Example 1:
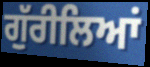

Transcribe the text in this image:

ਗੁੱਰੀਲਿਆਂ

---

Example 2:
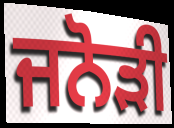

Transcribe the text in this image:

ਜਨੋੜੀ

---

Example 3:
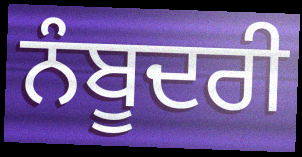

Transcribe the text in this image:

ਨੰਬੂਦਰੀ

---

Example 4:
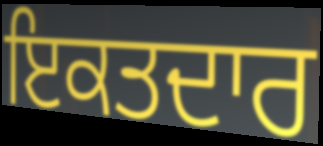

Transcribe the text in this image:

ਇਕਤਦਾਰ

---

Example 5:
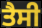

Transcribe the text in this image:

ਤੈਸੀ